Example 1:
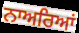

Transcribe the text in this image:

ਨਾਅਰਿਆਂ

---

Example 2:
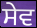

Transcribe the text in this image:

ਸੇਵ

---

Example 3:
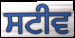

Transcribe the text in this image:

ਸਟੀਵ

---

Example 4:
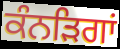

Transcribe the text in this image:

ਕੰਨੜਿਗਾਂ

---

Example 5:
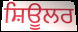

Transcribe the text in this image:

ਸ਼ਿਊਲਰ